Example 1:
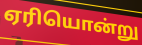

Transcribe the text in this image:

ஏரியொன்று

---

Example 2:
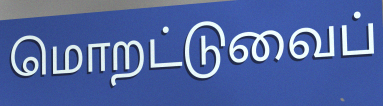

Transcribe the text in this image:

மொறட்டுவைப்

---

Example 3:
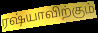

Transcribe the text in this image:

ரஷ்யாவிற்கும்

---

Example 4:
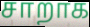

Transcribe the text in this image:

சாறாக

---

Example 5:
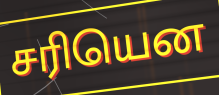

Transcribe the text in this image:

சரியென